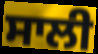
ਸਾਲੀ